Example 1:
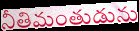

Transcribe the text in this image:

నీతిమంతుడును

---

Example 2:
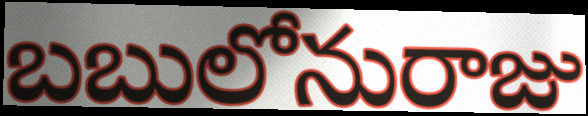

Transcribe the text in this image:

బబులోనురాజు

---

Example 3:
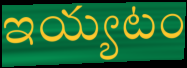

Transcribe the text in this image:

ఇయ్యటం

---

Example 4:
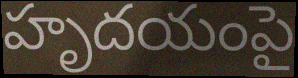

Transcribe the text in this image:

హృదయంపై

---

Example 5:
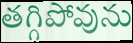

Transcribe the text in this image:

తగ్గిపోవును